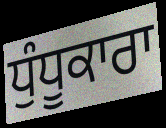
ਧੁੰਧੂਕਾਰਾ